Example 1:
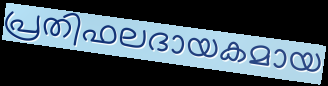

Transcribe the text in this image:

പ്രതിഫലദായകമായ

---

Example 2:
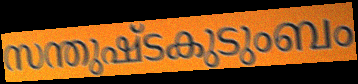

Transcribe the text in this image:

സന്തുഷ്ടകുടുംബം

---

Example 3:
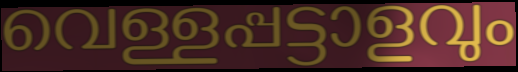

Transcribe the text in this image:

വെള്ളപ്പട്ടാളവും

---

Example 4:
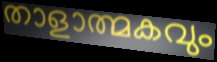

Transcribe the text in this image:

താളാത്മകവും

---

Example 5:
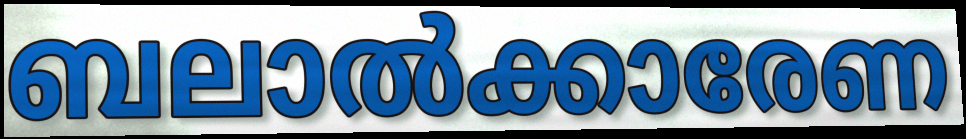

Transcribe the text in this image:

ബലാൽക്കാരേണ